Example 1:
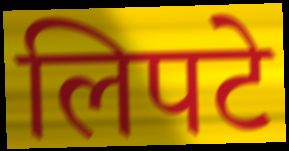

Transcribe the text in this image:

लिपटे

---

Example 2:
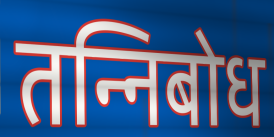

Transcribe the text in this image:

तन्निबोध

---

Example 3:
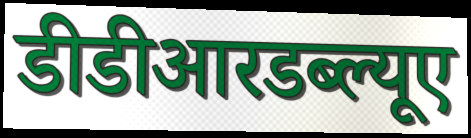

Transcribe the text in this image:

डीडीआरडब्ल्यूए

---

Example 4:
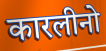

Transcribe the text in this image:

कारलीनो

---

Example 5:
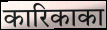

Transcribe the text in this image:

कारिकाका